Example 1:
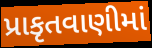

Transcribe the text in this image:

પ્રાકૃતવાણીમાં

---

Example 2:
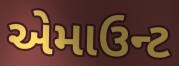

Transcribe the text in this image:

એમાઉન્ટ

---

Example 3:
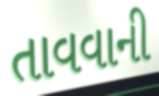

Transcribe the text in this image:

તાવવાની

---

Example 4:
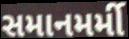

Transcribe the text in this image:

સમાનમર્મી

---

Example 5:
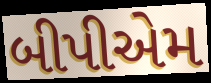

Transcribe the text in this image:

બીપીએમ